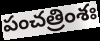
పంచత్రింశః